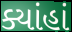
ક્યાંહાં